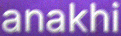
anakhi